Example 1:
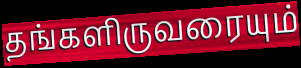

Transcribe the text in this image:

தங்களிருவரையும்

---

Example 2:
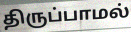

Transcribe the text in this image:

திருப்பாமல்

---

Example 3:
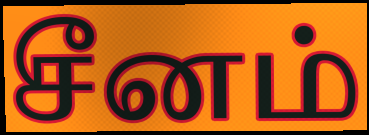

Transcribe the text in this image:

சீனம்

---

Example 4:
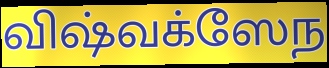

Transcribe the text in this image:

விஷ்வக்ஸேந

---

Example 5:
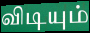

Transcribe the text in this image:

விடியும்